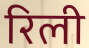
रिली